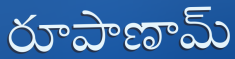
రూపాణామ్